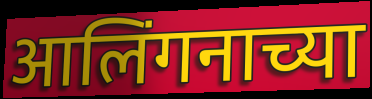
आलिंगनाच्या